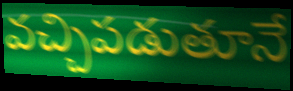
వచ్చిపడుతూనే